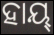
ହାୟ୍